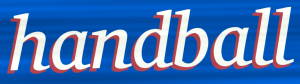
handball